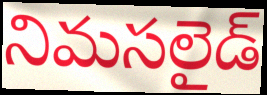
నిమసలైడ్